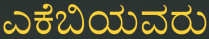
ಎಕೆಬಿಯವರು